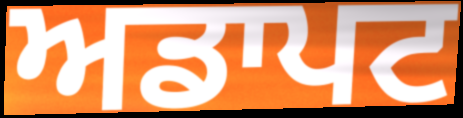
ਅਡਾਪਟ